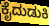
ಕೈದುಡುಕಿ